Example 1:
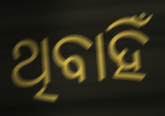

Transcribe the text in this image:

ଥିବାହିଁ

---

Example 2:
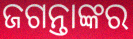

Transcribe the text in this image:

ଜଗନ୍ତାଙ୍କର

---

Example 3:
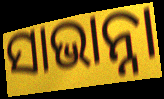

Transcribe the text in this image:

ସାଭାନ୍ନା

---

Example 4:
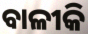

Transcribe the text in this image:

ବାଳୀକି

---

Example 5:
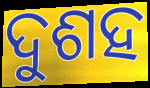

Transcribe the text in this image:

ଦୁଶହ